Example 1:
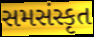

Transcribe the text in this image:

સમસંસ્કૃત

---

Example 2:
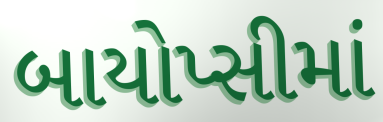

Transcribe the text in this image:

બાયોપ્સીમાં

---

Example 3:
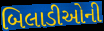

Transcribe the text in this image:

બિલાડીઓની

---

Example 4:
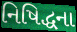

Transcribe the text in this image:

નિષિદ્ધના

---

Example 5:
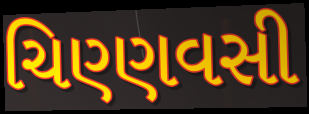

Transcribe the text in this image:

ચિણ્ણવસી